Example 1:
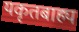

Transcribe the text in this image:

यकृतबाह्य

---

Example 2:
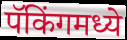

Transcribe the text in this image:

पॅकिंगमध्ये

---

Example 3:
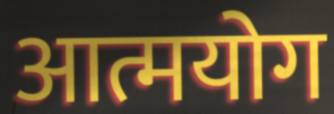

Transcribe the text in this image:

आत्मयोग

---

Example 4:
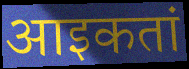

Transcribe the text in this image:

आइकतां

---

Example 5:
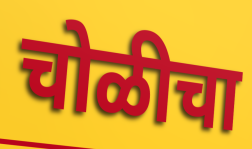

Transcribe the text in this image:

चोळीचा